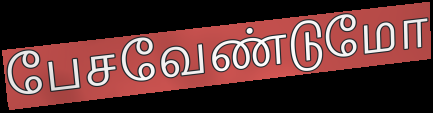
பேசவேண்டுமோ